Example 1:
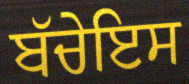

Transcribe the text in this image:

ਬੱਚੇਇਸ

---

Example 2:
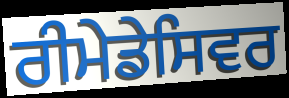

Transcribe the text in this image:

ਰੀਮੇਡੇਸਿਵਰ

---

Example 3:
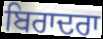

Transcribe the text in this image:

ਬਿਰਾਦਰਾ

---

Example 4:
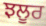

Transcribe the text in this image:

ਝਲੂਰ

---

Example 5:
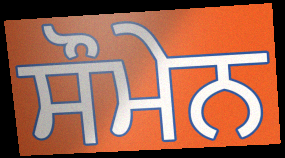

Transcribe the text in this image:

ਸੌਮੇਨ